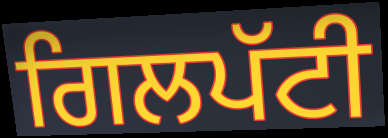
ਗਿਲਪੱਟੀ